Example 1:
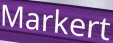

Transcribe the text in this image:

Markert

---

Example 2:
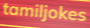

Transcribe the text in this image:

tamiljokes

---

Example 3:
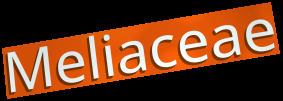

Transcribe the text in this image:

Meliaceae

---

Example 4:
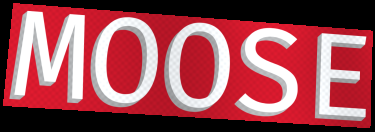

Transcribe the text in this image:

MOOSE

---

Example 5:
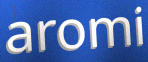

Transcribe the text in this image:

aromi